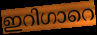
ഇറിഗാറെ